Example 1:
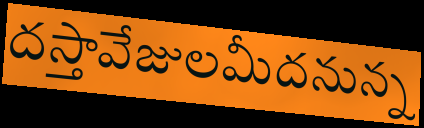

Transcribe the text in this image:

దస్తావేజులమీదనున్న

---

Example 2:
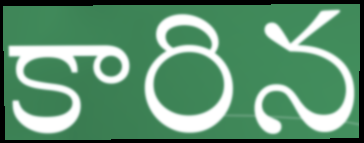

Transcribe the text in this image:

కారిన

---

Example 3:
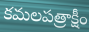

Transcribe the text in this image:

కమలపత్రాక్షీం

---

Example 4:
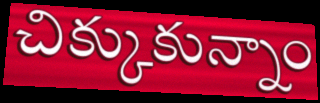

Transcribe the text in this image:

చిక్కుకున్నాం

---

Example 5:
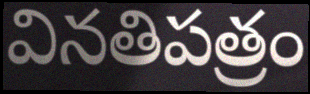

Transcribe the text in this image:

వినతిపత్రం